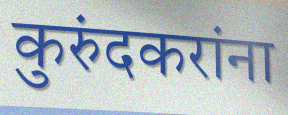
कुरुंदकरांना